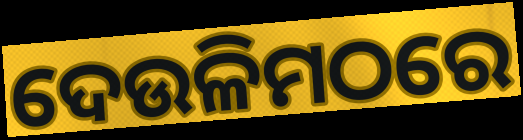
ଦେଉଳିମଠରେ